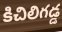
కిచిలిగడ్డ